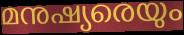
മനുഷ്യരെയും